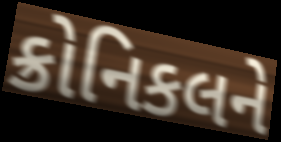
ક્રોનિકલને